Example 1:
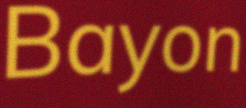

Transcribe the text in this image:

Bayon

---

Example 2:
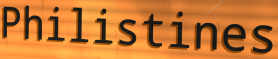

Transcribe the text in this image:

Philistines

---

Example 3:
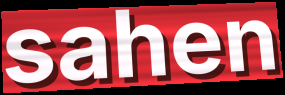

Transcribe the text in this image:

sahen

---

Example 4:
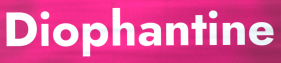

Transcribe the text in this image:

Diophantine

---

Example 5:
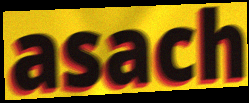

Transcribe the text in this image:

asach